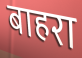
बाहरा